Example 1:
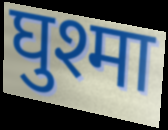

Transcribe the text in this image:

घुश्मा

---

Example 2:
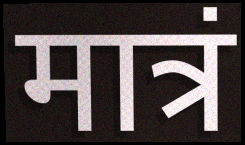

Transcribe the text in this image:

मात्रं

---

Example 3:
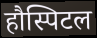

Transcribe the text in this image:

हौस्पिटल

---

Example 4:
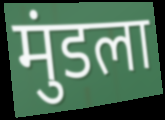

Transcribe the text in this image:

मुंडला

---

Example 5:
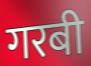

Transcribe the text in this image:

गरबी